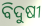
ବିଦୁଷୀ